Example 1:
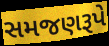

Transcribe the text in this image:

સમજણરૂપે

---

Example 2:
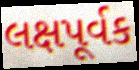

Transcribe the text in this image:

લક્ષપૂર્વક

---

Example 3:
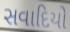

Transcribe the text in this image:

સવાદિયો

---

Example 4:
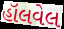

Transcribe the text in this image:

હૉલવેલ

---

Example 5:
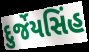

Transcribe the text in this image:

દુર્જેયસિંહ